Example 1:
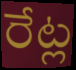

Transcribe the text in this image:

రేట్ల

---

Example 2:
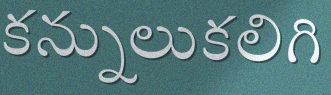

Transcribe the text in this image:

కన్నులుకలిగి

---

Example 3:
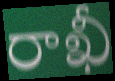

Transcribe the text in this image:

రాఖీ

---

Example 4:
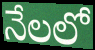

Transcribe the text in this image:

నేలలో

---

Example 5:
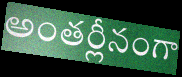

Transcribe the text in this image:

అంతర్లీనంగా